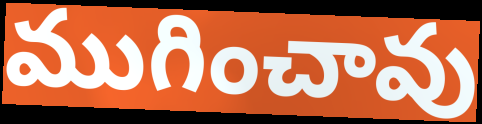
ముగించావు